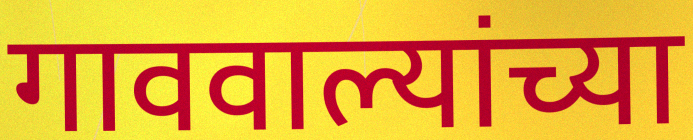
गाववाल्यांच्या